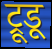
ट्रूडू